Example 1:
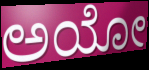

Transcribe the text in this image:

ಅಯೋ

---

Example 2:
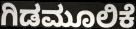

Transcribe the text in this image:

ಗಿಡಮೂಲಿಕೆ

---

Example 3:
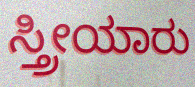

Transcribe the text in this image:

ಸ್ತ್ರೀಯಾರು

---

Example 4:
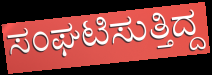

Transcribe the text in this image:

ಸಂಘಟಿಸುತ್ತಿದ್ದ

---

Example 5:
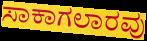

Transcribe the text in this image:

ಸಾಕಾಗಲಾರವು